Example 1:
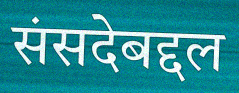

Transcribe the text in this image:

संसदेबद्दल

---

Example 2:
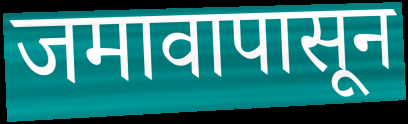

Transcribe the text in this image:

जमावापासून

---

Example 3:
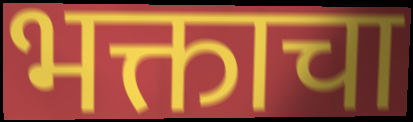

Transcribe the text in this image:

भक्ताचा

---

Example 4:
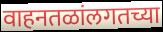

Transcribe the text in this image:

वाहनतळांलगतच्या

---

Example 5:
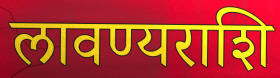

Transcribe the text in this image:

लावण्यराशि